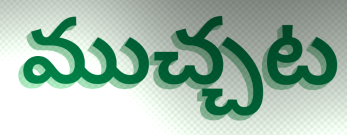
ముచ్చట